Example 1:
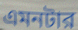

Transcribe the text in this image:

এমনটার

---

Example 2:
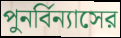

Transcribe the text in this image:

পুনর্বিন্যাসের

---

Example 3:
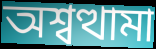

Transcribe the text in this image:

অশ্বত্থামা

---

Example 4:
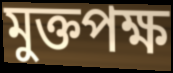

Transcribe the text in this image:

মুক্তপক্ষ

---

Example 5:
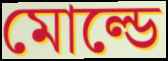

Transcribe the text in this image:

মোল্ডে